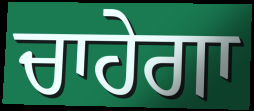
ਚਾਹੇਗਾ